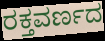
ರಕ್ತವರ್ಣದ